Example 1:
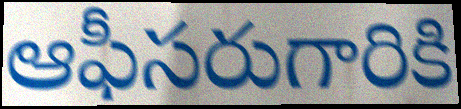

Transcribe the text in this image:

ఆఫీసరుగారికి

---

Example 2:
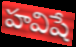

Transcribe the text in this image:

హవిషే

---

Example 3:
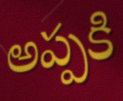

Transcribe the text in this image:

అప్పకి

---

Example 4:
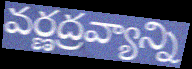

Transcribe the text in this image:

వర్ణద్రవ్యాన్ని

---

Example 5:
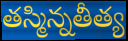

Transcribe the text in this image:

తస్మిన్నతీత్య